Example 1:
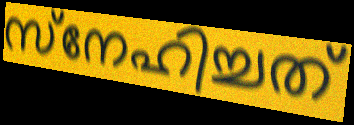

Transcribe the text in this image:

സ്‌നേഹിച്ചത്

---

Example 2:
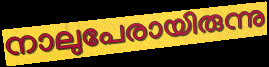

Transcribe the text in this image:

നാലുപേരായിരുന്നു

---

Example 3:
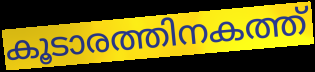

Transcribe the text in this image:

കൂടാരത്തിനകത്ത്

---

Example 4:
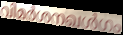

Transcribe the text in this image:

വിമർശനഖൾഗം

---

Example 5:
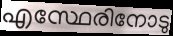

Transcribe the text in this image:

എസ്ഥേരിനോടു